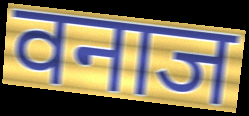
वनाज